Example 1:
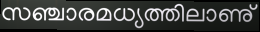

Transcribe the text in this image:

സഞ്ചാരമധ്യത്തിലാണു്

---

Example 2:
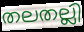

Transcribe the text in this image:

തലതല്ലി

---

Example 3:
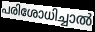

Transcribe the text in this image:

പരിശോധിച്ചാൽ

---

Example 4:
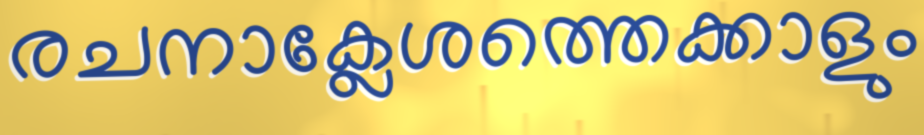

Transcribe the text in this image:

രചനാക്ലേശത്തെക്കാളും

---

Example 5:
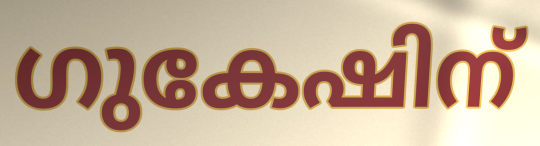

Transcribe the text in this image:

ഗുകേഷിന്